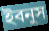
ইবনুস